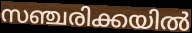
സഞ്ചരിക്കയിൽ